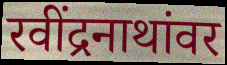
रवींद्रनाथांवर